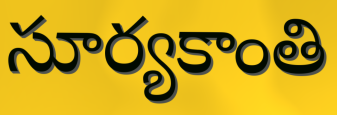
సూర్యకాంతి